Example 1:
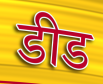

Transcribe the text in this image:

डीड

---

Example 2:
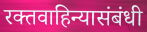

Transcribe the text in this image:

रक्तवाहिन्यासंबंधी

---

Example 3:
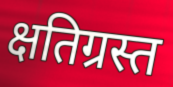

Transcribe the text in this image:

क्षतिग्रस्त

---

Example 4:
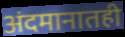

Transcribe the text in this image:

अंदमानातही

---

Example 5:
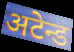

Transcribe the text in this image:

अटेन्ड